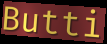
Butti